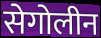
सेगोलीन